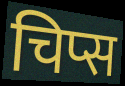
चिप्‍स